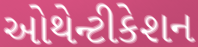
ઓથેન્ટીકેશન